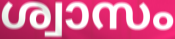
ശ്വാസം